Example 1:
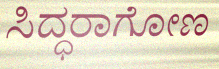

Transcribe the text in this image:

ಸಿದ್ಧರಾಗೋಣ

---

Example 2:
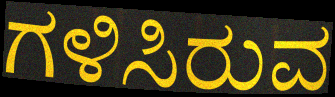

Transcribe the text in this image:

ಗಳಿಸಿರುವ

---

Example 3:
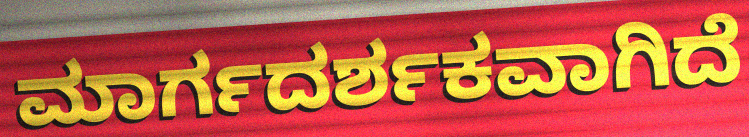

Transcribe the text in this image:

ಮಾರ್ಗದರ್ಶಕವಾಗಿದೆ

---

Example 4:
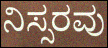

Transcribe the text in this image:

ನಿಸ್ಸರವು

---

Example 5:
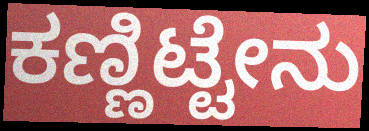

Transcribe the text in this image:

ಕಣ್ಣಿಟ್ಟೇನು